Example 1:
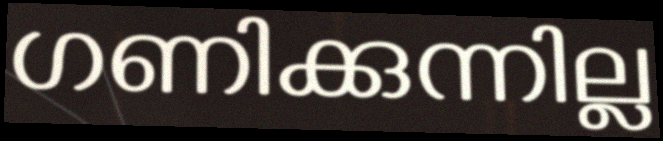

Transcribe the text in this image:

ഗണിക്കുന്നില്ല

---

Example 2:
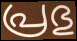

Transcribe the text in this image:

പ്രഭു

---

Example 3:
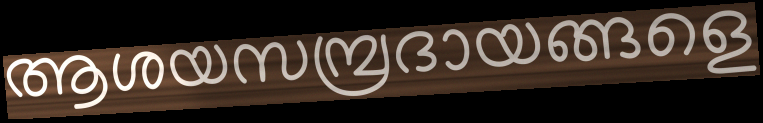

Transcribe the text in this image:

ആശയസമ്പ്രദായങ്ങളെ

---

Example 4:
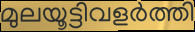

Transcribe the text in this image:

മുലയൂട്ടിവളർത്തി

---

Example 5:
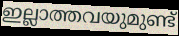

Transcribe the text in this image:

ഇല്ലാത്തവയുമുണ്ട്